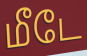
மீடே